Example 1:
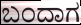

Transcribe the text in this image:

ಬಂದಾಗ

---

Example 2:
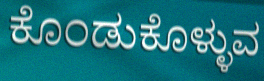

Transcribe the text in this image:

ಕೊಂಡುಕೊಳ್ಳುವ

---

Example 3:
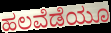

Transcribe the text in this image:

ಹಲವೆಡೆಯೂ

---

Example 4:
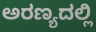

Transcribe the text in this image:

ಅರಣ್ಯದಲ್ಲಿ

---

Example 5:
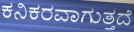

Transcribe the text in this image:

ಕನಿಕರವಾಗುತ್ತದೆ